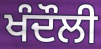
ਖੰਦੌਲੀ